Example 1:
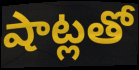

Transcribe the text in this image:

షాట్లతో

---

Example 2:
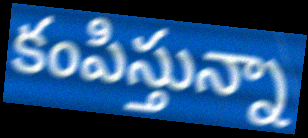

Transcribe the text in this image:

కంపిస్తున్నా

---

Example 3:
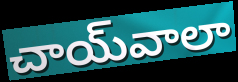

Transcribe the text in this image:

చాయ్‌వాలా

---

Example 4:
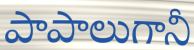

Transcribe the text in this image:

పాపాలుగానీ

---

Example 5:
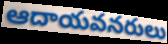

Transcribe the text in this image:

ఆదాయవనరులు